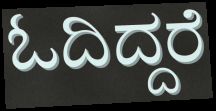
ಓದಿದ್ದರೆ